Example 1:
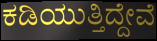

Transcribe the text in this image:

ಕಡಿಯುತ್ತಿದ್ದೇವೆ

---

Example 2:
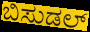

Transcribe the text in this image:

ಬಿಸುಡಲ್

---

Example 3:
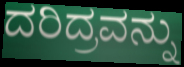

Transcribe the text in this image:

ದರಿದ್ರವನ್ನು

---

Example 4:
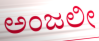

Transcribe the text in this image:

ಅಂಜಲೀ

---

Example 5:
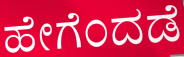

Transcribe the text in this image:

ಹೇಗೆಂದಡೆ